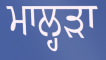
ਮਾਲ੍ਹੜਾ